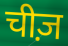
चीज़